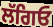
ਲੱਗਿਓ